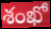
శంఖో